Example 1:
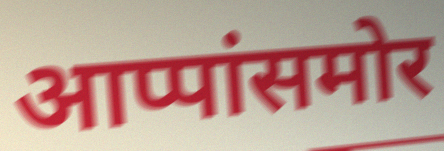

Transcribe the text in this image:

आप्पांसमोर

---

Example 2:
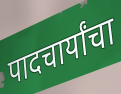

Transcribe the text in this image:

पादचार्यांचा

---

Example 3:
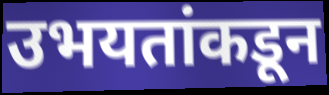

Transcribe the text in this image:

उभयतांकडून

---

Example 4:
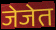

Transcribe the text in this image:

जेजेत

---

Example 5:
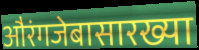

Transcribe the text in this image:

औरंगजेबासारख्या